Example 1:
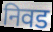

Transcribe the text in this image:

निवड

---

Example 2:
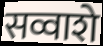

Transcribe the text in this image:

सव्वाशे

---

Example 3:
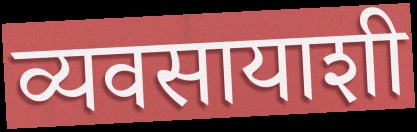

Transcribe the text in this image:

व्यवसायाशी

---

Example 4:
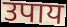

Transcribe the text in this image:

उपाय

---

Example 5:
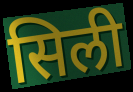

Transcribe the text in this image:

सिली